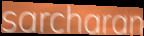
sarcharan